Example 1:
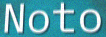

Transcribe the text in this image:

Noto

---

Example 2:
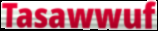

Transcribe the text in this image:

Tasawwuf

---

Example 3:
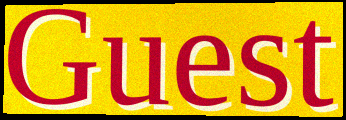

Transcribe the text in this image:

Guest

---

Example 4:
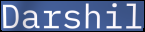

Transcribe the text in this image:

Darshil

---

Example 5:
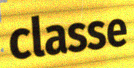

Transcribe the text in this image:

classe